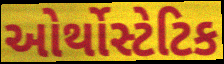
ઓર્થોસ્ટેટિક